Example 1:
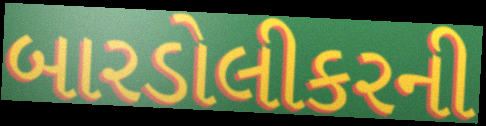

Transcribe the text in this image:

બારડોલીકરની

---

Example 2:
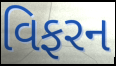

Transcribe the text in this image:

વિફરન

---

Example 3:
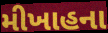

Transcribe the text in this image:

મીખાહના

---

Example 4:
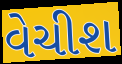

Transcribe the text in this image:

વેચીશ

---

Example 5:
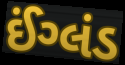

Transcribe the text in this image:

ઈંગ્લંડ